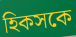
হিকসকে